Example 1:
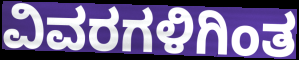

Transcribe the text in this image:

ವಿವರಗಳಿಗಿಂತ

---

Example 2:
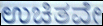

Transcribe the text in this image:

ಉಚಿತವೇ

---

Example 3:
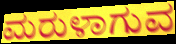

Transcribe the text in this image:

ಮರುಳಾಗುವ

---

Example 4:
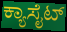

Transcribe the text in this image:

ಕ್ಯಾಸೈಟ್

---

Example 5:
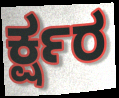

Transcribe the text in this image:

ರ್ಕ್ಷರ